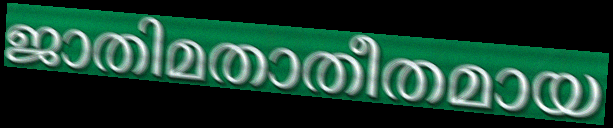
ജാതിമതാതീതമായ